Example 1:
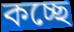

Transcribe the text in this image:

কচ্ছে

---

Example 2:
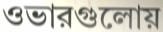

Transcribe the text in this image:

ওভারগুলোয়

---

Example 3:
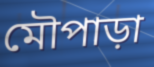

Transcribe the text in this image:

মৌপাড়া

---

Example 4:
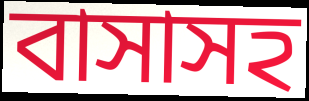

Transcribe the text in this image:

বাসাসহ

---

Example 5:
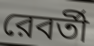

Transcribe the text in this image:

রেবর্তী